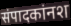
संपादकांनश